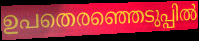
ഉപതെരഞ്ഞെടുപ്പിൽ